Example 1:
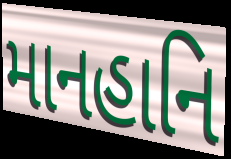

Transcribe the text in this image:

માનહાનિ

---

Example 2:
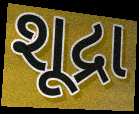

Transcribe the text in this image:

શૂદ્રા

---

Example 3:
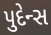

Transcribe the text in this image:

પુદેન્સ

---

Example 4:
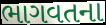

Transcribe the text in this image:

ભાગવતના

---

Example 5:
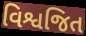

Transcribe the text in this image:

વિશ્વજિત